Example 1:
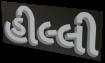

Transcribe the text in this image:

હીલ્લી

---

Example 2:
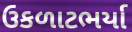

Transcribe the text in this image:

ઉકળાટભર્યા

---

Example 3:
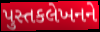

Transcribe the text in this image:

પુસ્તકલેખનને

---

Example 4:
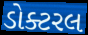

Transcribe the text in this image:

ડોક્ટરલ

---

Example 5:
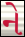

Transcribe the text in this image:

ને